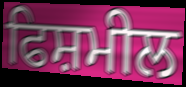
ਫਿਸ਼ਮੀਲ